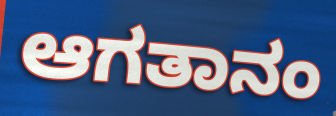
ಆಗತಾನಂ